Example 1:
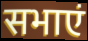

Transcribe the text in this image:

सभाएं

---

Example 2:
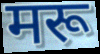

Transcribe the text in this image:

मरू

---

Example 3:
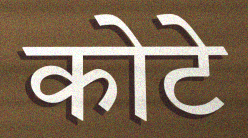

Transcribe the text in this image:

कोटे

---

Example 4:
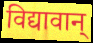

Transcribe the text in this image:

विद्यावान्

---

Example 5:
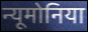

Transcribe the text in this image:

न्यूमोनिया